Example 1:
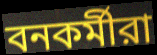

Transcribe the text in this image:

বনকর্মীরা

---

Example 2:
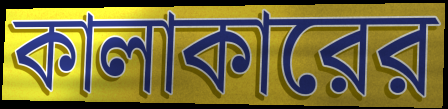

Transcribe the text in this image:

কালাকারের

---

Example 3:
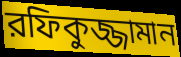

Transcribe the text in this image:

রফিকুজ্জামান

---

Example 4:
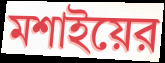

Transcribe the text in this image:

মশাইয়ের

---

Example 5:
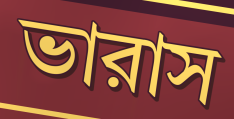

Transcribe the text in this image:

ভারাস